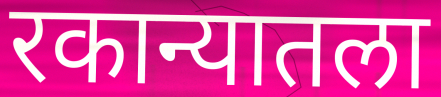
रकान्यातला